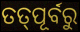
ତତ୍‌ପୂର୍ବରୁ